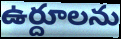
ఉర్దూలను